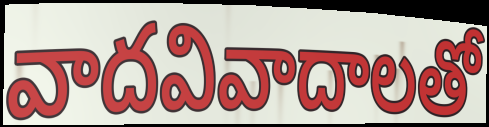
వాదవివాదాలతో